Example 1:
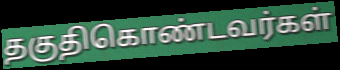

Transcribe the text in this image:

தகுதிகொண்டவர்கள்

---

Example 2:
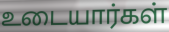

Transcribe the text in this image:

உடையார்கள்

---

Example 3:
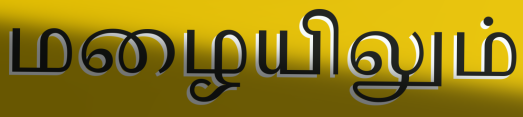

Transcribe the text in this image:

மழையிலும்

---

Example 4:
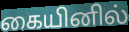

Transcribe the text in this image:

கையினில்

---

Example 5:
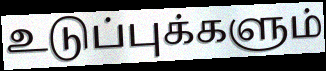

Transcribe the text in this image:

உடுப்புக்களும்